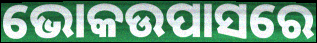
ଭୋକଉପାସରେ